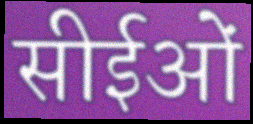
सीईओं